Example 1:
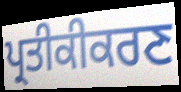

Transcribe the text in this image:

ਪ੍ਰਤੀਕੀਕਰਣ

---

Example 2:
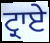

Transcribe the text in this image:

ਟ੍ਰਾਏ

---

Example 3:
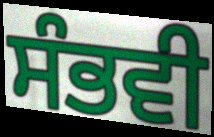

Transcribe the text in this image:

ਸੰਭਵੀ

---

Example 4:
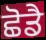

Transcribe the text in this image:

ਛੋਡੈ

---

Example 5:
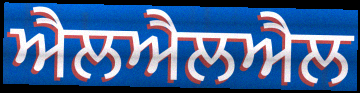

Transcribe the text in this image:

ਐਲਐਲਐਲ